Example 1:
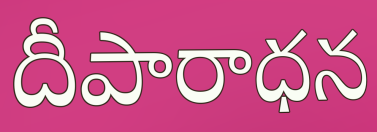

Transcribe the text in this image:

దీపారాధన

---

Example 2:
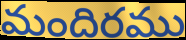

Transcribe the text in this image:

మందిరము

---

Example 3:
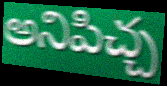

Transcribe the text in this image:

అనిపిచ్చ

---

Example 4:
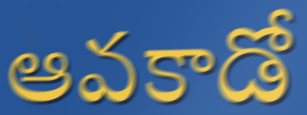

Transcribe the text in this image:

ఆవకాడో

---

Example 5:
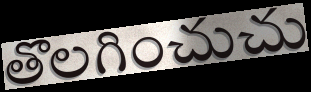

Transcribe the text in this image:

తొలగించుచు